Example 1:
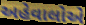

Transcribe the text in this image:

અહેવાલોએ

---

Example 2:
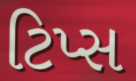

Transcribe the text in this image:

ટિપ્સ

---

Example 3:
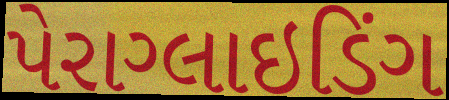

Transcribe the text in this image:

પેરાગ્લાઇડિંગ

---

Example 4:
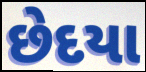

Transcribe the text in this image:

છેદયા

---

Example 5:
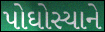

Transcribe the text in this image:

પોઘોસ્યાને